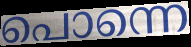
പൊന്നെ